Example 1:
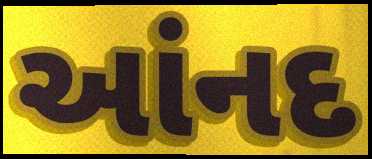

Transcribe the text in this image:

આંનદ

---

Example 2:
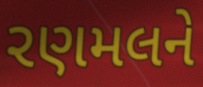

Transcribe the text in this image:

રણમલને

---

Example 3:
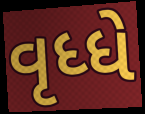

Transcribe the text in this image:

વૃધ્ધે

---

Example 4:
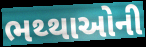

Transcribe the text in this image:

ભથ્થાઓની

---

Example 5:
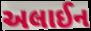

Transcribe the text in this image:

અલાઈન